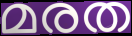
മരത